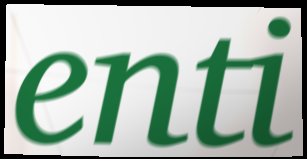
enti